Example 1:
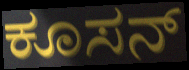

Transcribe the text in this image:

ಕೂಸನ್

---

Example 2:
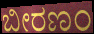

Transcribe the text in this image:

ಬೀರಣಂ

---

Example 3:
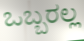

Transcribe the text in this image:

ಒಬ್ಬರಲ್ಲ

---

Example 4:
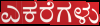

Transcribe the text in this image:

ಎಕರೆಗಳು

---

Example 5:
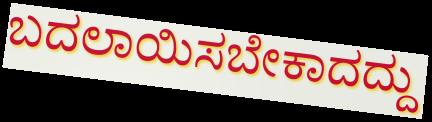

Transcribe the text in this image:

ಬದಲಾಯಿಸಬೇಕಾದದ್ದು